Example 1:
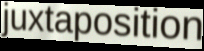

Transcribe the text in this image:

juxtaposition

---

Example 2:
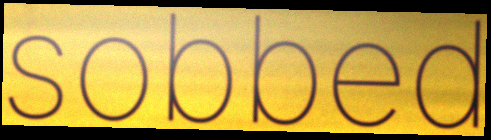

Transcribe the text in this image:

sobbed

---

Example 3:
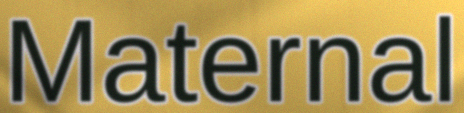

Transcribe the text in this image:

Maternal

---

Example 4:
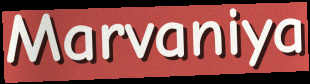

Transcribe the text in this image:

Marvaniya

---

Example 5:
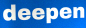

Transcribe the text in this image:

deepen